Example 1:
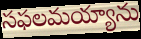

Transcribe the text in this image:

సఫలమయ్యాను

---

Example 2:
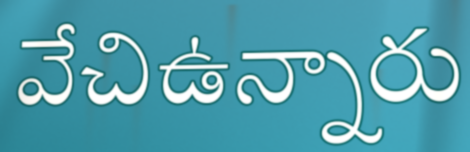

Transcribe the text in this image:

వేచిఉన్నారు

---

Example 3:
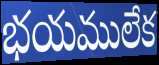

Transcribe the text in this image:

భయములేక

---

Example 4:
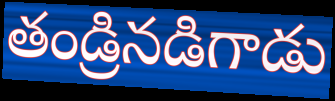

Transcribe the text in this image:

తండ్రినడిగాడు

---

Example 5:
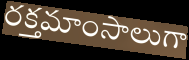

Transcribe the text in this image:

రక్తమాంసాలుగా